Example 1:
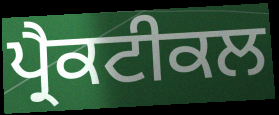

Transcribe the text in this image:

ਪ੍ਰੈਕਟੀਕਲ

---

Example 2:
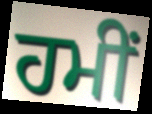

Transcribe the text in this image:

ਹਮੀਂ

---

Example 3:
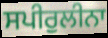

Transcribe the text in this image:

ਸਪੀਰੁਲੀਨਾ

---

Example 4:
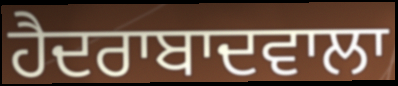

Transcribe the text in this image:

ਹੈਦਰਾਬਾਦਵਾਲਾ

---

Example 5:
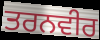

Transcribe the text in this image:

ਤਰਨਵੀਰ